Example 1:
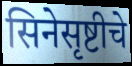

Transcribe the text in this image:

सिनेसृष्टीचे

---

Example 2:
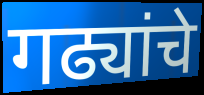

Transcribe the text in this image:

गढ्यांचे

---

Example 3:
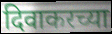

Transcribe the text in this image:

दिवाकरच्या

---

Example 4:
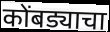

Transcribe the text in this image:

कोंबड्याचा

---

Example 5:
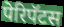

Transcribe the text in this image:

पेरिपॅटस